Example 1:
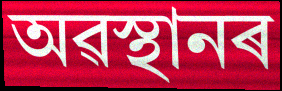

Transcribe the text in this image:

অৱস্থানৰ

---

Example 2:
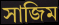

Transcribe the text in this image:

সাজিম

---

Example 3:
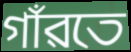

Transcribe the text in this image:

গাঁৱতে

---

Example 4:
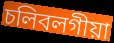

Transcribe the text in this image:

চলিবলগীয়া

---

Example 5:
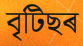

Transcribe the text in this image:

বৃটিছৰ